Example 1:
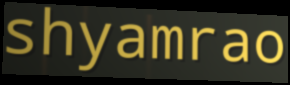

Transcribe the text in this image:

shyamrao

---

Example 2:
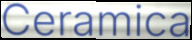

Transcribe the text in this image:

Ceramica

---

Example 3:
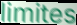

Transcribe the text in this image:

limites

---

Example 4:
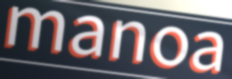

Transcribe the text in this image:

manoa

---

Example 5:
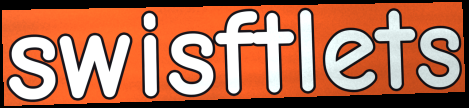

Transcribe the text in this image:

swisftlets